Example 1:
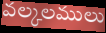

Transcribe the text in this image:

వల్కలములు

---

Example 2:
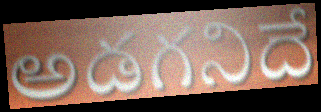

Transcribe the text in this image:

అడగనిదే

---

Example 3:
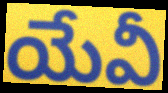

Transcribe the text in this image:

యేవీ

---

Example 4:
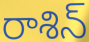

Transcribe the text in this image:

రాశిన్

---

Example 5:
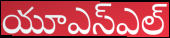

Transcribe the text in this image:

యూఎస్ఎల్